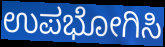
ಉಪಭೋಗಿಸಿ